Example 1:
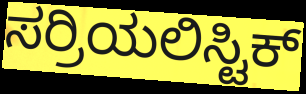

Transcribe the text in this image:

ಸರ್ರಿಯಲಿಸ್ಟಿಕ್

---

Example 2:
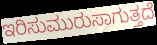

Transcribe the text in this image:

ಇರಿಸುಮುರುಸಾಗುತ್ತದೆ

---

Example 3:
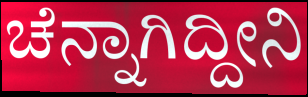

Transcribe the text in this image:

ಚೆನ್ನಾಗಿದ್ದೀನಿ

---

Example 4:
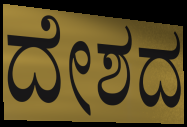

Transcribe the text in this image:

ದೇಶದ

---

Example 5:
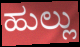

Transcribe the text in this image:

ಹುಲ್ಲು